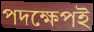
পদক্ষেপই